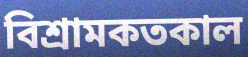
বিশ্রামকতকাল